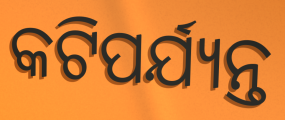
କଟିପର୍ଯ୍ୟନ୍ତ